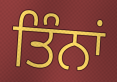
ਤਿੰਨਾਂ